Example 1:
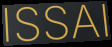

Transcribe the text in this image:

ISSAI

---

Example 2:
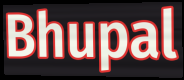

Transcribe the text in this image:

Bhupal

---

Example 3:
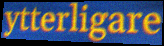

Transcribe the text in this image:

ytterligare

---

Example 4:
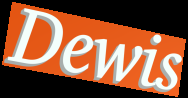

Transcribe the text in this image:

Dewis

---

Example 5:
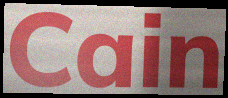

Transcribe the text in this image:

Cain